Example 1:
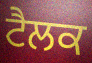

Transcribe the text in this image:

ਟੈਲਕ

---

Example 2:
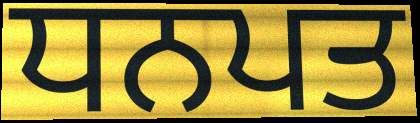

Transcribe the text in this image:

ਧਨਪਤ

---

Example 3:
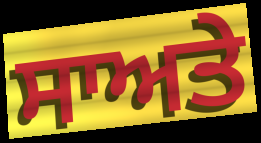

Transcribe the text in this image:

ਸਾਅਤੇ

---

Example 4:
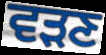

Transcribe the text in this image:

ਵੜਣ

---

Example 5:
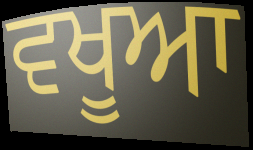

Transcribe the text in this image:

ਵਖੂਆ